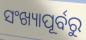
ସଂଖ୍ୟାପୂର୍ବରୁ